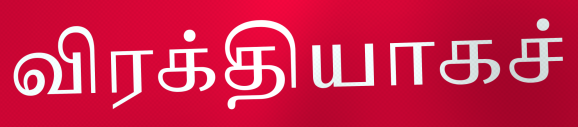
விரக்தியாகச்